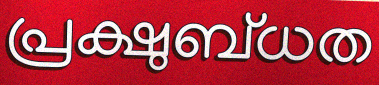
പ്രക്ഷുബ്ധത